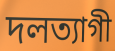
দলত্যাগী